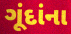
ગૂંદાંના